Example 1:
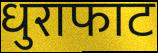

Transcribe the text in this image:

धुराफाट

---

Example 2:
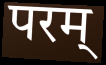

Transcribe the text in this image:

परम्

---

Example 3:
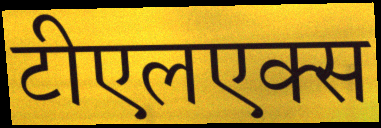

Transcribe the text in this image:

टीएलएक्स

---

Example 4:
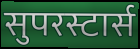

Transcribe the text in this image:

सुपरस्‍टार्स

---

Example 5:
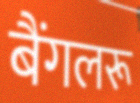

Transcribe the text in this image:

बैंगलरू